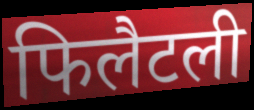
फिलैटली